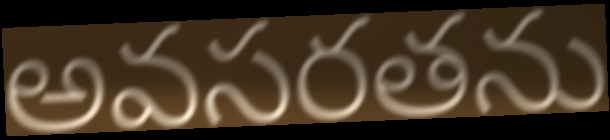
అవసరతను